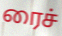
ரைச்